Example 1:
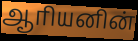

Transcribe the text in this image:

ஆரியனின்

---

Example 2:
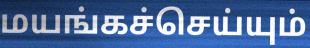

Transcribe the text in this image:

மயங்கச்செய்யும்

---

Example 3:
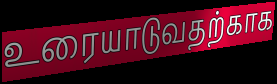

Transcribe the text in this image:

உரையாடுவதற்காக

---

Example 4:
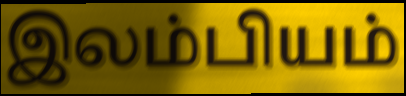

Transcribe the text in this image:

இலம்பியம்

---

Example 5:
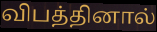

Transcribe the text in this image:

விபத்தினால்